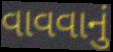
વાવવાનું